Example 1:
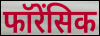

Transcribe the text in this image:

फॉरेंसिक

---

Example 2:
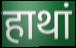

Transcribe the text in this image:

हाथां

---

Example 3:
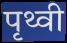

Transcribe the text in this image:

पृथ्‍वी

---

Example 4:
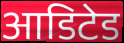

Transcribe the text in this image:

आडिटेड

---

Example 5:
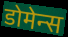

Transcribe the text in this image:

डोमेन्स